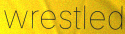
wrestled